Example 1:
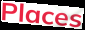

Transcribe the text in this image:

Places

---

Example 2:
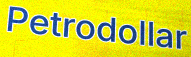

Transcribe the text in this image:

Petrodollar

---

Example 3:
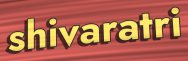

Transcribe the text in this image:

shivaratri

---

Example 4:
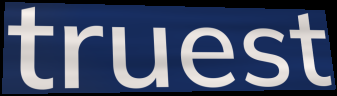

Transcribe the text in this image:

truest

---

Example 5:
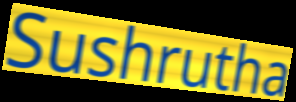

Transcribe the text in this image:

Sushrutha